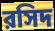
রসিদ